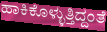
ಹಾಕಿಕೊಳ್ಳುತ್ತಿದ್ದಂತೆ